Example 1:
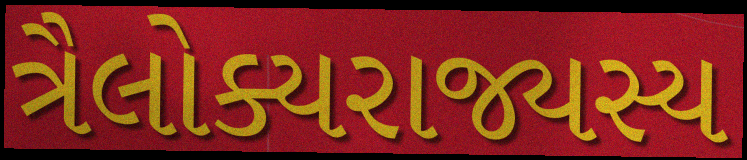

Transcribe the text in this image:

ત્રૈલોક્યરાજ્યસ્ય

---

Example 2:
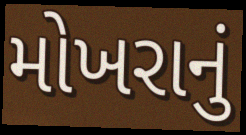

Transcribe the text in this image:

મોખરાનું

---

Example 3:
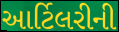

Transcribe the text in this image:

આર્ટિલરીની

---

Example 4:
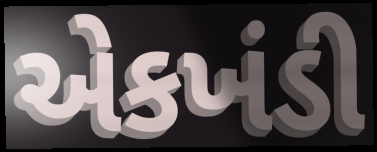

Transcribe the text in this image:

એકખંડી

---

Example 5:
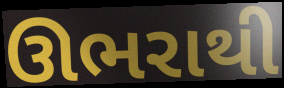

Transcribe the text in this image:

ઊભરાથી